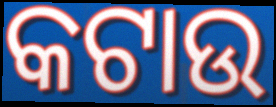
କଟାଉ